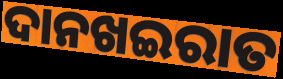
ଦାନଖଇରାତ